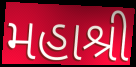
મહાશ્રી